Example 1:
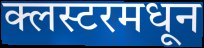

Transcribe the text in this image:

क्लस्टरमधून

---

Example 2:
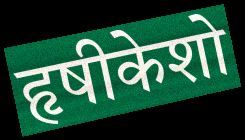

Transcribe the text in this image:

हृषीकेशो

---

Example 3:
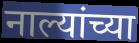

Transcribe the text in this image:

नाल्यांच्या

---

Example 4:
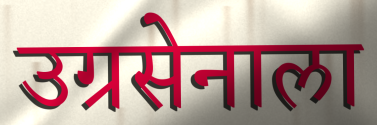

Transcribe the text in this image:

उग्रसेनाला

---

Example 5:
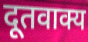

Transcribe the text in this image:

दूतवाक्य